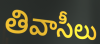
తివాసీలు